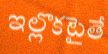
ఇల్లొకటైతే